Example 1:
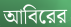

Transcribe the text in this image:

আবিরের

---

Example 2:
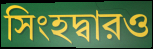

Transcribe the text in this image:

সিংহদ্বারও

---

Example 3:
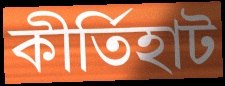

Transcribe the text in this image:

কীর্তিহাট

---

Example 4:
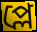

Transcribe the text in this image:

প্লে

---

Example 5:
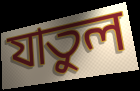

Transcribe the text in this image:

যাতুল